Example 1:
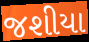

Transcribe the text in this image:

જશીયા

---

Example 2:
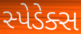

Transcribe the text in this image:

સ્પેડેક્સ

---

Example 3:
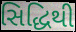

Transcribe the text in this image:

સિદ્ધિથી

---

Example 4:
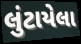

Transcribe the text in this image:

લુંટાયેલા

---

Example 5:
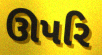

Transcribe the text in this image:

ઊપરિ